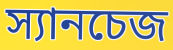
স্যানচেজ